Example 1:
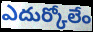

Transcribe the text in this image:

ఎదుర్కోలేం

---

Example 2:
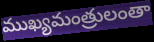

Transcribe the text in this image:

ముఖ్యమంత్రులంతా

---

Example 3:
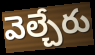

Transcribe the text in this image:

వెల్చేరు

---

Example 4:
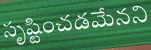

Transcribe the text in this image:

సృష్టించడమేనని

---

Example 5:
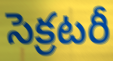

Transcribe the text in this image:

సెక్రటరీ